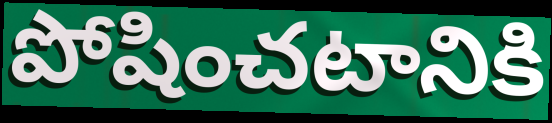
పోషించటానికి